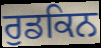
ਰੁਡਕਿਨ